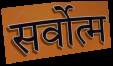
सर्वोत्म